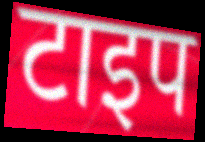
टाइप